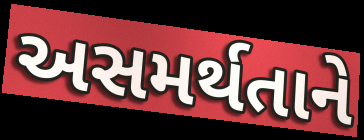
અસમર્થતાને